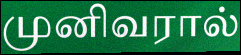
முனிவரால்